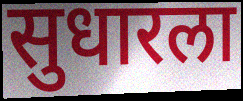
सुधारला